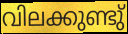
വിലക്കുണ്ടു്